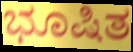
ಭೂಷಿತ